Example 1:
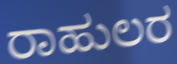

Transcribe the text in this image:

ರಾಹುಲರ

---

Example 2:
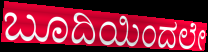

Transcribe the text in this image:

ಬೂದಿಯಿಂದಲೇ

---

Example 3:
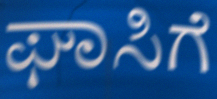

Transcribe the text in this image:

ಘಾಸಿಗೆ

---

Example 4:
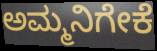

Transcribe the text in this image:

ಅಮ್ಮನಿಗೇಕೆ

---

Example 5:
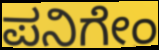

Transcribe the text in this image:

ಪನಿಗೇಂ